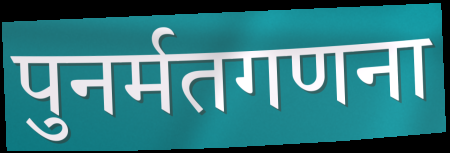
पुनर्मतगणना